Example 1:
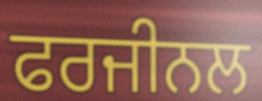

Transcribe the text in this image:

ਫਰਜੀਨਲ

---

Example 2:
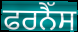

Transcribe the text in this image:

ਫਰਨੈੱਸ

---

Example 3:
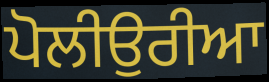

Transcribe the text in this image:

ਪੋਲੀਉਰੀਆ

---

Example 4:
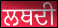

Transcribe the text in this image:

ਲਥਦੀ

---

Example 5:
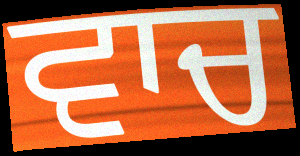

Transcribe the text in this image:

ਵਾਚ